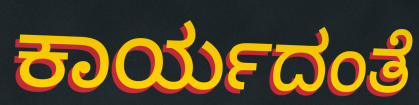
ಕಾರ್ಯದಂತೆ